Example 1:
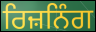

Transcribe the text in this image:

ਰਿਜ਼ਨਿੰਗ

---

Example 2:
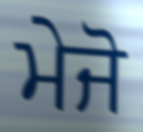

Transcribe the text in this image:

ਮੇਜੋ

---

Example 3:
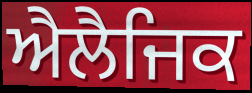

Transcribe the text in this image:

ਐਲੈਜਿਕ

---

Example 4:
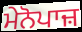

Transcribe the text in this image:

ਮੇਨੋਪਾਜ਼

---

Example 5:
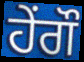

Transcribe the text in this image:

ਹੇਂਗੌ